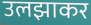
उलझाकर